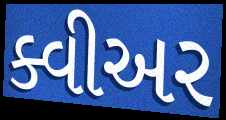
ક્વીઅર